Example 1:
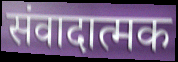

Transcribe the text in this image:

संवादात्मक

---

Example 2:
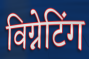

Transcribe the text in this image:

विग्नेटिंग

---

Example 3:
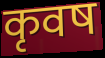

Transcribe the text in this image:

कृवष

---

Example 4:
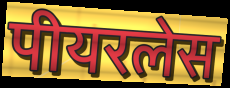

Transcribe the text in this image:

पीयरलेस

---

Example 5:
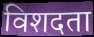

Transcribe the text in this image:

विशदता